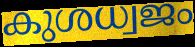
കുശധ്വജം